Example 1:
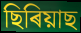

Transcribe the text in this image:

ছিৰিয়াছ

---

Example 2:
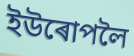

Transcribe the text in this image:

ইউৰোপলৈ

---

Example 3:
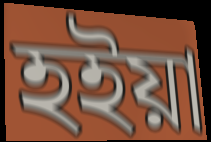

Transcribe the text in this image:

হইয়া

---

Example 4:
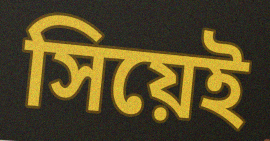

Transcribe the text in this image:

সিয়েই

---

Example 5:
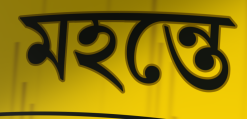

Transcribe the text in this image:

মহন্তে